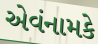
એવંનામકે